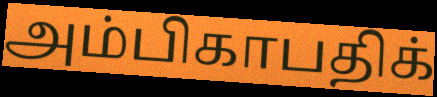
அம்பிகாபதிக்